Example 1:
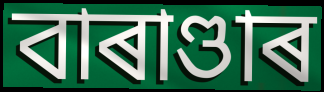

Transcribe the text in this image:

বাৰাণ্ডাৰ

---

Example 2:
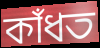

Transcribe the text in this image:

কাঁধত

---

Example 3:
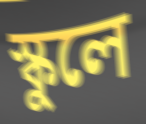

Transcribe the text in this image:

স্কুলে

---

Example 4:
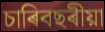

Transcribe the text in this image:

চাৰিবছৰীয়া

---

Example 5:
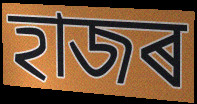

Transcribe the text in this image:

হাজৰ